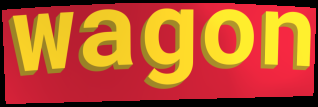
wagon